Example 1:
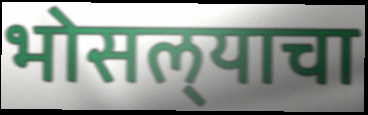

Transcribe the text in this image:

भोसल्याचा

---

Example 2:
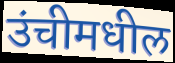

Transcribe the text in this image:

उंचीमधील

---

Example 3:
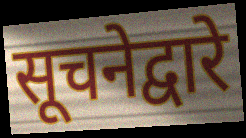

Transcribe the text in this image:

सूचनेद्वारे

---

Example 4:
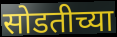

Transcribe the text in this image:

सोडतीच्या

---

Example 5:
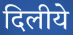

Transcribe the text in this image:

दिलीये